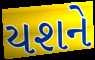
યશને